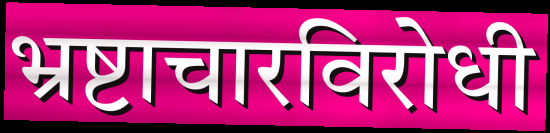
भ्रष्टाचारविरोधी